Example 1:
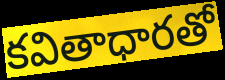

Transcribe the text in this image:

కవితాధారతో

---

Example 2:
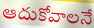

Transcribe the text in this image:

ఆదుకోవాలనే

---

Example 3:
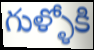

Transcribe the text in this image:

గుళ్ళోకి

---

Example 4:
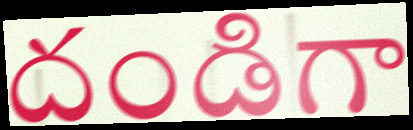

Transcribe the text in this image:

దండిగా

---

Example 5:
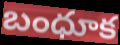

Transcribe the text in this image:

బంధూక